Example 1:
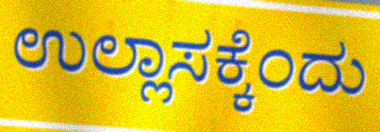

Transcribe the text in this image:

ಉಲ್ಲಾಸಕ್ಕೆಂದು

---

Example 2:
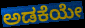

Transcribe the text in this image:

ಅಡಕೆಯೇ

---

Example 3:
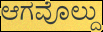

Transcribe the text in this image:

ಆಗವೊಲ್ದು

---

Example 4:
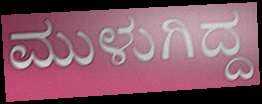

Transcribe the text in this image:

ಮುಳುಗಿದ್ದ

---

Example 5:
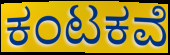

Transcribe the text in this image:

ಕಂಟಕವೆ